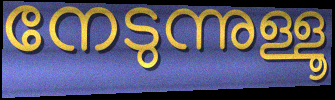
നേടുന്നുള്ളൂ